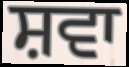
ਸ਼ਵਾ